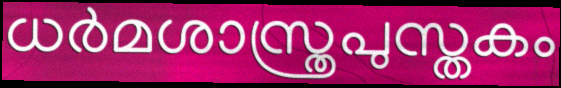
ധർമശാസ്ത്രപുസ്തകം